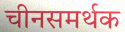
चीनसमर्थक